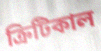
ক্রিটিকাল